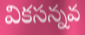
వికసన్నవ